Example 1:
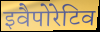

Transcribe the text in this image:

इवैपोरेटिव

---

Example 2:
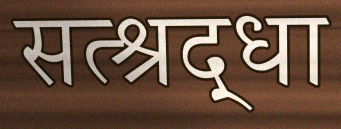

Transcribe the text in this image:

सत्श्रद्धा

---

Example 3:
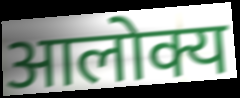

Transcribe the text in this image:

आलोक्य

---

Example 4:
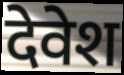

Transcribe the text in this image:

देवेश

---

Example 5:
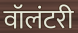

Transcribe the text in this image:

वॉलंटरी